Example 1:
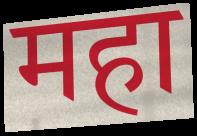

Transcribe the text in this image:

महा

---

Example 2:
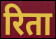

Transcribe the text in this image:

रिता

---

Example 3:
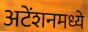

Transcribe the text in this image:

अटेंशनमध्ये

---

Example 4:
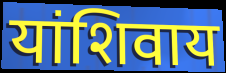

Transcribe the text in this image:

यांशिवाय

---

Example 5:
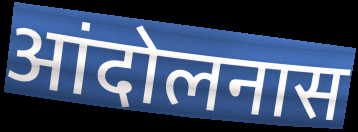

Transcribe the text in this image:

आंदोलनास